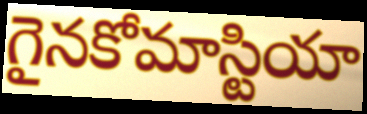
గైనకోమాస్టియా